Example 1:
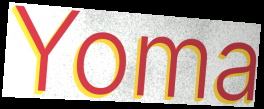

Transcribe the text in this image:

Yoma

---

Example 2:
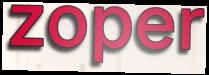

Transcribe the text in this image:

zoper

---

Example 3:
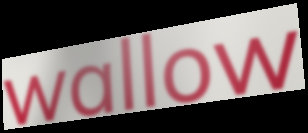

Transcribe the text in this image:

wallow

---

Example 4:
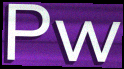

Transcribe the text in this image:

Pw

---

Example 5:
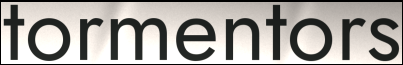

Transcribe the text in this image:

tormentors